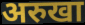
अरुखा